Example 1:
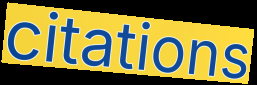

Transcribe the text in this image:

citations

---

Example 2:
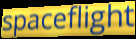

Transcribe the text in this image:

spaceflight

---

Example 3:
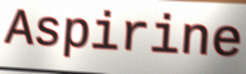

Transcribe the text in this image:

Aspirine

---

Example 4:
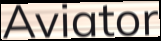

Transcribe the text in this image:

Aviator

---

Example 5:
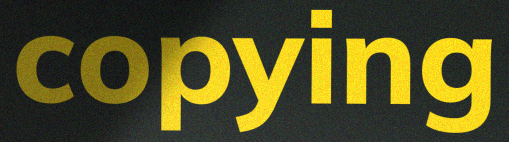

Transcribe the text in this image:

copying